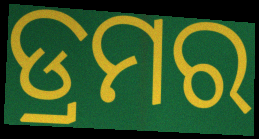
ଡ୍ରମର